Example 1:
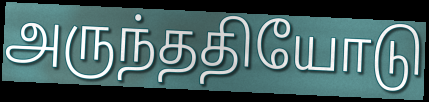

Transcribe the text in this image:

அருந்ததியோடு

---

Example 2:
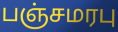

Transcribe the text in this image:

பஞ்சமரபு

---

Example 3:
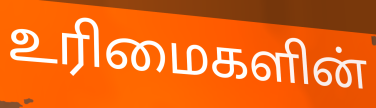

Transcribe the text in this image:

உரிமைகளின்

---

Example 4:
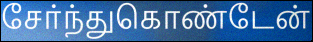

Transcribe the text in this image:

சேர்ந்துகொண்டேன்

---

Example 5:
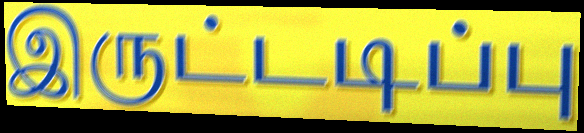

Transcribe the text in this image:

இருட்டடிப்பு